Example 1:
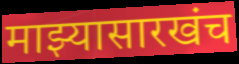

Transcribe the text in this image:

माझ्यासारखंच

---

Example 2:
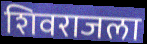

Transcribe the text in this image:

शिवराजला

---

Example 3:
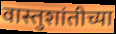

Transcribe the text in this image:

वास्तुशांतीच्या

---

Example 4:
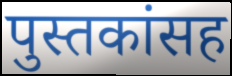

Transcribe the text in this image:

पुस्तकांसह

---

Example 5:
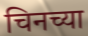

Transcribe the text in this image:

चिनच्या